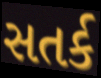
સતર્ક